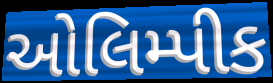
ઓલિમ્પીક